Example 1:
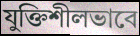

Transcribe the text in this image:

যুক্তিশীলভাবে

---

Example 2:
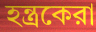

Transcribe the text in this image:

হন্ত্রকেরা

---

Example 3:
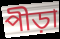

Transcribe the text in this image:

পীড়া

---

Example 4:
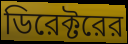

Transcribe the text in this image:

ডিরেক্টরের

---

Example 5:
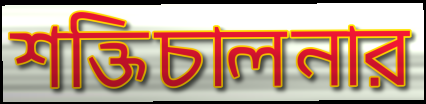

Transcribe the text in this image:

শক্তিচালনার